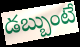
డబ్బుంటే